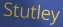
Stutley